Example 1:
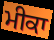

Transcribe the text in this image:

ਮੀਕਾ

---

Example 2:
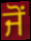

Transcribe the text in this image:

ਜੋਂ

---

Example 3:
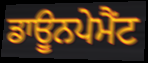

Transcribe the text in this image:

ਡਾਊਨਪੇਮੈਂਟ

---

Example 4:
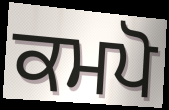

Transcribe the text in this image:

ਕਮਪੋ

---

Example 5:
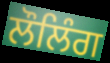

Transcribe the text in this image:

ਲੌਲਿੰਗ